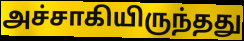
அச்சாகியிருந்தது